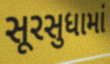
સૂરસુધામાં